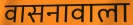
वासनावाला